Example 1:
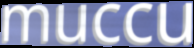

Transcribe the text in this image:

muccu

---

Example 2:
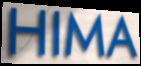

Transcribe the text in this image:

HIMA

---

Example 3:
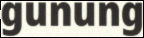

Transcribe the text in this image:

gunung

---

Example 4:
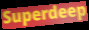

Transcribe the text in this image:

Superdeep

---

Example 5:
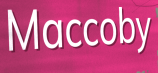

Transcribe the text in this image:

Maccoby